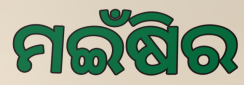
ମଇଁଷିର